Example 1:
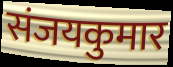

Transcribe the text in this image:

संजयकुमार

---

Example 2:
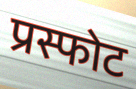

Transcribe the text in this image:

प्रस्फोट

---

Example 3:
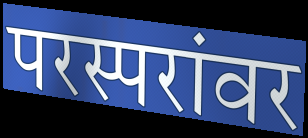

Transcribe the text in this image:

परस्परांवर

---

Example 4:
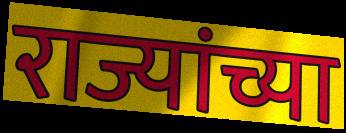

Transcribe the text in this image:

राज्यांच्या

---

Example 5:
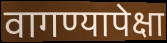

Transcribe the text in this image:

वागण्यापेक्षा